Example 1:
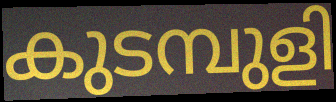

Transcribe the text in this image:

കുടമ്പുളി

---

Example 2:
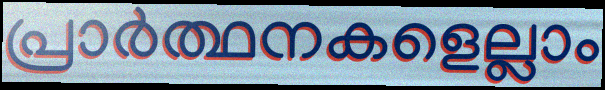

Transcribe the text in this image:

പ്രാർത്ഥനകളെല്ലാം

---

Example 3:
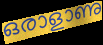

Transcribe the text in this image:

ഒരാളാണു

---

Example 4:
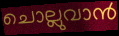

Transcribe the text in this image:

ചൊല്ലുവാൻ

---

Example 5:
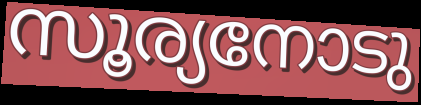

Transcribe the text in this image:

സൂര്യനോടു